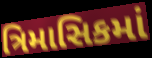
ત્રિમાસિકમાં